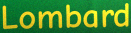
Lombard